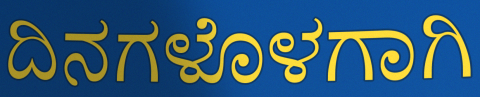
ದಿನಗಳೊಳಗಾಗಿ